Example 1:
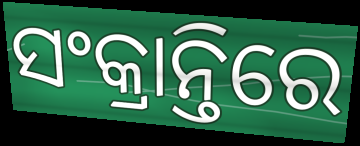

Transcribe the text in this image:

ସଂକ୍ରାନ୍ତିରେ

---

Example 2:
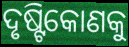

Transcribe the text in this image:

ଦୃଷ୍ଟିକୋଣକୁ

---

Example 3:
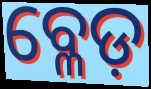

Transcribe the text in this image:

ବ୍ଳେଡ଼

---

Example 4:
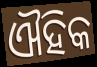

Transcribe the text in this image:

ଐହିକ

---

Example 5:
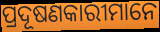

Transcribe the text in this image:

ପ୍ରଦୂଷଣକାରୀମାନେ